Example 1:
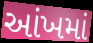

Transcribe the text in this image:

આંખમાં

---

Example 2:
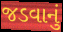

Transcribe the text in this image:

જડવાનું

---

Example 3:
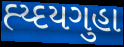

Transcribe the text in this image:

હ્ય્દયગુહા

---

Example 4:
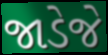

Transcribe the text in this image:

જાડેજે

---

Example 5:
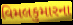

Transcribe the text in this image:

વિમલકુમારના